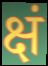
क्षं